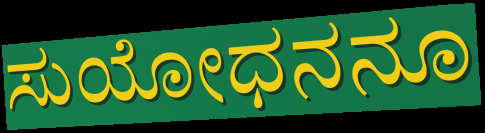
ಸುಯೋಧನನೂ